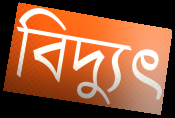
বিদ্যুৎ